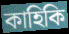
কাহিকি